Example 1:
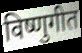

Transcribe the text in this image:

विष्णुगीत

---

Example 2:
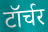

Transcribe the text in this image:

टॉर्चर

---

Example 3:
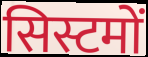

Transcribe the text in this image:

सिस्टमों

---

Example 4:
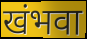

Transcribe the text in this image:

खंभवा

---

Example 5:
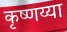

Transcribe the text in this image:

कृष्णय्या